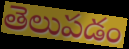
తెలుపడం